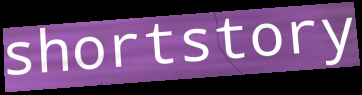
shortstory